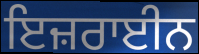
ਇਜ਼ਰਾਈਨ